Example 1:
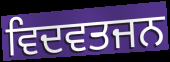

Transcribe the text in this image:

ਵਿਦਵਤਜਨ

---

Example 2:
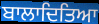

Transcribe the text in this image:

ਬਾਲਾਦਿਤਿਆ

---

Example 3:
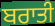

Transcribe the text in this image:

ਬਰਾਤੀ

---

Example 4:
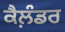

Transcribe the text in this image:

ਕੈਲ਼ੰਡਰ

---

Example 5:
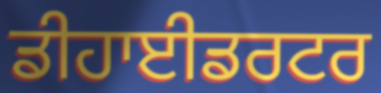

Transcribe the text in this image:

ਡੀਹਾਈਡਰਟਰ